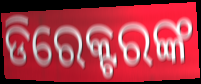
ଡିରେକ୍ଟରଙ୍କ